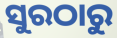
ସୁରଠାରୁ